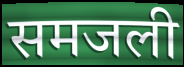
समजली